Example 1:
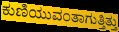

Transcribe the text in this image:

ಕುಣಿಯುವಂತಾಗುತ್ತಿತ್ತು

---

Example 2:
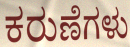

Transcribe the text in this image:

ಕರುಣೆಗಳು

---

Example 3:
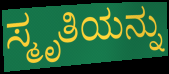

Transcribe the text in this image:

ಸ್ಮೃತಿಯನ್ನು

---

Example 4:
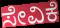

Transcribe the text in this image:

ಸೇವಿಕೆ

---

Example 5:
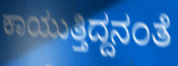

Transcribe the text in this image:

ಕಾಯುತ್ತಿದ್ದನಂತೆ